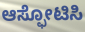
ಆಸ್ಫೋಟಿಸಿ